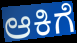
ಆಕಿಗೆ